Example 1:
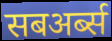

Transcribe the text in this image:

सबअर्ब्स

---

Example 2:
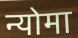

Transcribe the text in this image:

न्योमा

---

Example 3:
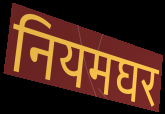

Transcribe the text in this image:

नियमघर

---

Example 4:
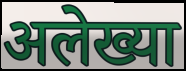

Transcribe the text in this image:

अलेख्या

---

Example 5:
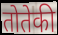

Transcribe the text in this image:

तोतेकी